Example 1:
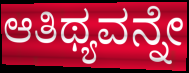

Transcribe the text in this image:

ಆತಿಥ್ಯವನ್ನೇ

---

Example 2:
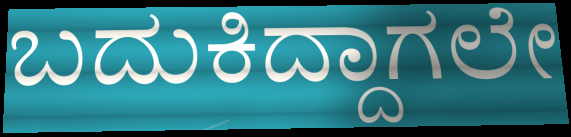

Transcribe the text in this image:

ಬದುಕಿದ್ದಾಗಲೇ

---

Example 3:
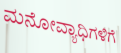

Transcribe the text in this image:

ಮನೋವ್ಯಾಧಿಗಳಿಗೆ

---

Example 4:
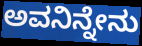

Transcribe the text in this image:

ಅವನಿನ್ನೇನು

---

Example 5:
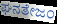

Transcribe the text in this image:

ಘನತೇಜಂ